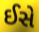
ઈસે